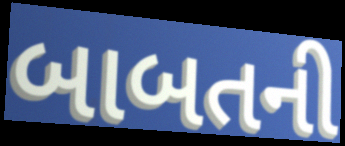
બાબતની